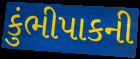
કુંભીપાકની